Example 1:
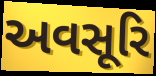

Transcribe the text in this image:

અવસૂરિ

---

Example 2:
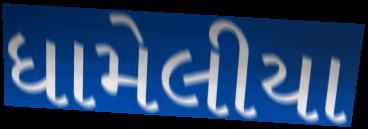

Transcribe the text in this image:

ધામેલીયા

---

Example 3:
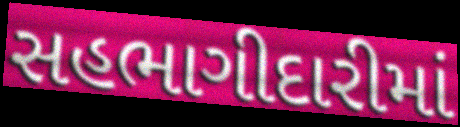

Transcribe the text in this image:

સહભાગીદારીમાં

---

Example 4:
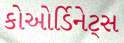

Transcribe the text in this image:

કોઓર્ડિનેટ્સ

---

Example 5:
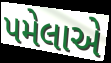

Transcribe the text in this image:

પમેલાએ